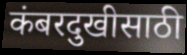
कंबरदुखीसाठी